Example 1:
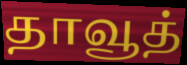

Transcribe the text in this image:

தாவூத்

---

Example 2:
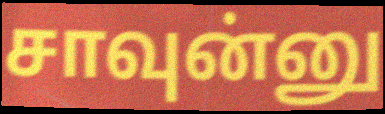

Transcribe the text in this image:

சாவுன்னு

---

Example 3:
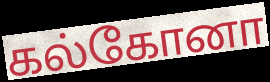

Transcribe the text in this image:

கல்கோனா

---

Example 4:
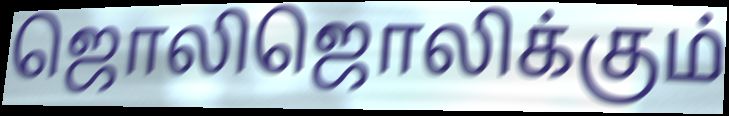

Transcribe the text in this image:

ஜொலிஜொலிக்கும்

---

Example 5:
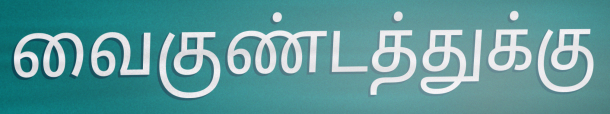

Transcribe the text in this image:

வைகுண்டத்துக்கு